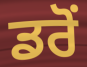
ਡਰੋਂ